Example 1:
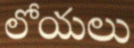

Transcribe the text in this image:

లోయలు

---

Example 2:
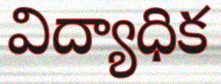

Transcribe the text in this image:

విద్యాధిక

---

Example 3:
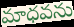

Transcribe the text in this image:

మాధవను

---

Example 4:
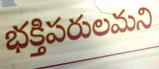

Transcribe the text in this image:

భక్తిపరులమని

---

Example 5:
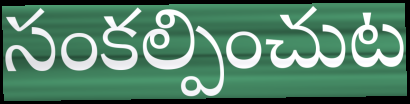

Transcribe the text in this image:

సంకల్పించుట